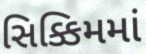
સિક્કિમમાં